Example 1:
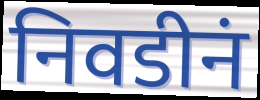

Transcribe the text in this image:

निवडीनं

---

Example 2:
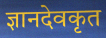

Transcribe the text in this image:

ज्ञानदेवकृत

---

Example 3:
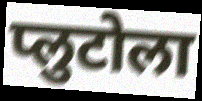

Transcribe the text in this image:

प्लुटोला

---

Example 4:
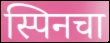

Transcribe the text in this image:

स्पिनचा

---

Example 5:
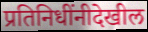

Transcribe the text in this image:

प्रतिनिधींनीदेखील